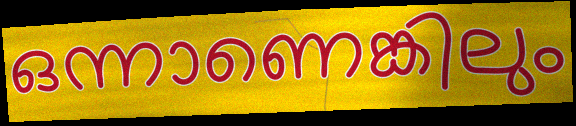
ഒന്നാണെങ്കിലും